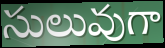
సులువుగా